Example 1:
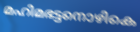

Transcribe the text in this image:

മഹിമഭട്ടനൊഴികെ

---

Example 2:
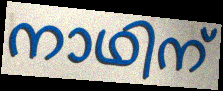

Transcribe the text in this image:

നാഥിന്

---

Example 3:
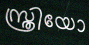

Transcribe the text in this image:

സ്ത്രിയോ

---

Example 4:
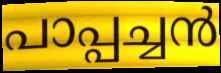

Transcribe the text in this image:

പാപ്പച്ചൻ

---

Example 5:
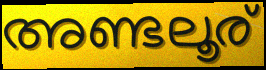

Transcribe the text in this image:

അണ്ടലൂര്